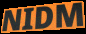
NIDM